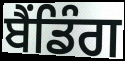
ਬੈਂਡਿੰਗ